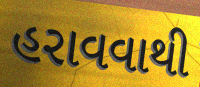
હરાવવાથી